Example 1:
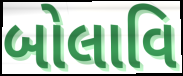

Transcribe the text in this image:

બોલાવિ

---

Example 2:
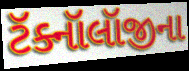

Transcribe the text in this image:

ટૅક્નૉલૉજીના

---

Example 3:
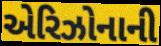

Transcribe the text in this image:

એરિઝોનાની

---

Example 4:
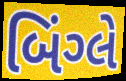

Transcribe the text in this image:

બિંગ્લે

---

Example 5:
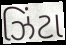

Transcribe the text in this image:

ઝિંટા